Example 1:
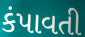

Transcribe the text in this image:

કંપાવતી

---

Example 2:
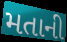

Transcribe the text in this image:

મતાની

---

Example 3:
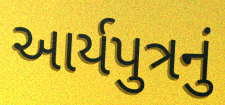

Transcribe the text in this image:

આર્યપુત્રનું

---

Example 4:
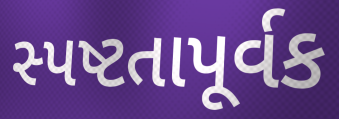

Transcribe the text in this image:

સ્પષ્ટતાપૂર્વક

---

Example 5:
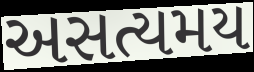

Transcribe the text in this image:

અસત્યમય